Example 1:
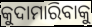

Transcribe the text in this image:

କୁଦାମାରିବାକୁ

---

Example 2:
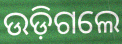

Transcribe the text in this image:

ଉଡ଼ିଗଲେ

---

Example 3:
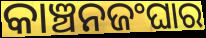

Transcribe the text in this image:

କାଞ୍ଚନଜଂଘାର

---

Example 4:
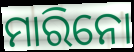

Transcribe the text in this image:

ମାରିନୋ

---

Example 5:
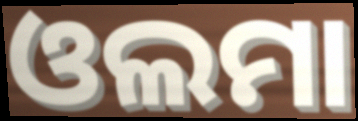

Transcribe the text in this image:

ଓଲମା